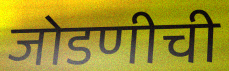
जोडणीची